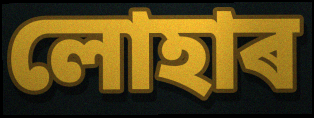
লোহাৰ